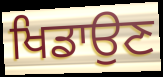
ਖਿਡਾਉਣ